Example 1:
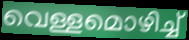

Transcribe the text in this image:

വെള്ളമൊഴിച്ച്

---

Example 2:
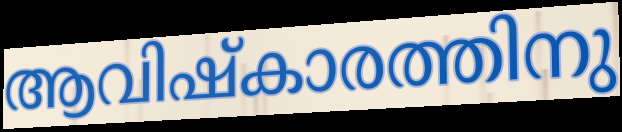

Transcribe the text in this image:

ആവിഷ്കാരത്തിനു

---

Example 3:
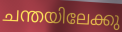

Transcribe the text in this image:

ചന്തയിലേക്കു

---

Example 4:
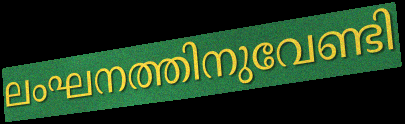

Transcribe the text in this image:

ലംഘനത്തിനുവേണ്ടി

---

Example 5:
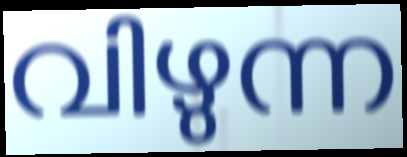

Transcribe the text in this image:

വിഴുന്ന